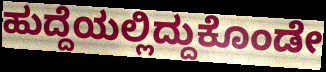
ಹುದ್ದೆಯಲ್ಲಿದ್ದುಕೊಂಡೇ